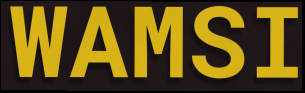
WAMSI